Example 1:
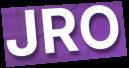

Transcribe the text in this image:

JRO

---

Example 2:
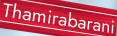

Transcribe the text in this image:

Thamirabarani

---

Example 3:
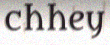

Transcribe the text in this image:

chhey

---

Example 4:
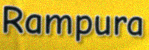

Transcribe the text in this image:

Rampura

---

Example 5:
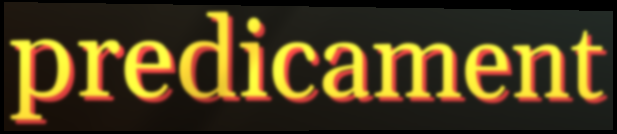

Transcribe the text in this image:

predicament